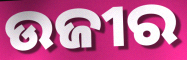
ଉଜୀର